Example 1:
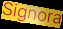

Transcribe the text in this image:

Signora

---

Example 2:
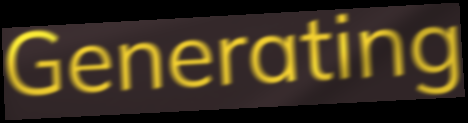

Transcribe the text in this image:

Generating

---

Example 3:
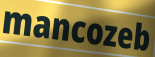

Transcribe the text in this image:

mancozeb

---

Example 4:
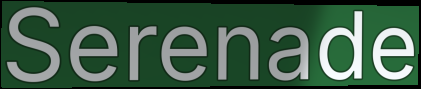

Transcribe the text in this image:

Serenade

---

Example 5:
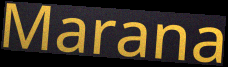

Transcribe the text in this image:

Marana